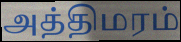
அத்திமரம்